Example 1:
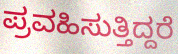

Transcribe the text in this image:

ಪ್ರವಹಿಸುತ್ತಿದ್ದರೆ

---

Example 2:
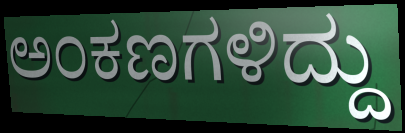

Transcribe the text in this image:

ಅಂಕಣಗಳಿದ್ದು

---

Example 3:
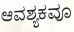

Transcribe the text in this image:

ಆವಶ್ಯಕವೂ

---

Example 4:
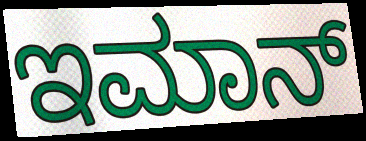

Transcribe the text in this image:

ಇಮಾನ್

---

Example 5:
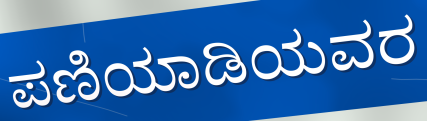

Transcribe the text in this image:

ಪಣಿಯಾಡಿಯವರ